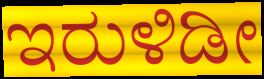
ಇರುಳಿಡೀ